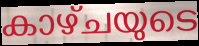
കാഴ്‌ചയുടെ